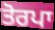
ਤੋਰਪਾ